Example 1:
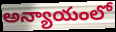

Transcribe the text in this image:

అన్యాయంలో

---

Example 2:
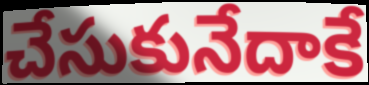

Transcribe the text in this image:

చేసుకునేదాకే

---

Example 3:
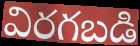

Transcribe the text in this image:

విరగబడి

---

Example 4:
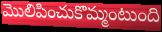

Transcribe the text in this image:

మొలిపించుకొమ్మంటుంది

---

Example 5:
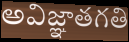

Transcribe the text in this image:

అవిజ్ఞాతగతి